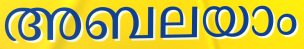
അബലയാം